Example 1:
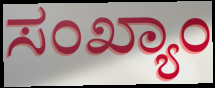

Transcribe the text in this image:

ಸಂಖ್ಯಾಂ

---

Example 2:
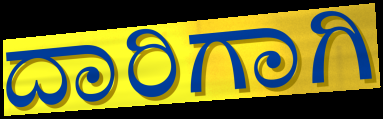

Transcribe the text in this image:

ದಾರಿಗಾಗಿ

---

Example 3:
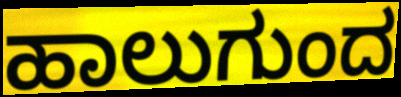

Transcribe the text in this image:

ಹಾಲುಗುಂದ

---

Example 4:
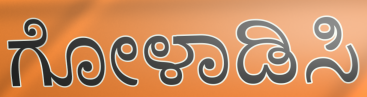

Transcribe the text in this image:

ಗೋಳಾಡಿಸಿ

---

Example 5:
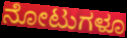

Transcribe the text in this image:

ನೋಟುಗಳೂ